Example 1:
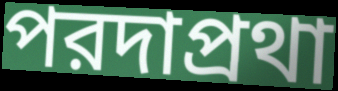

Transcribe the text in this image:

পরদাপ্রথা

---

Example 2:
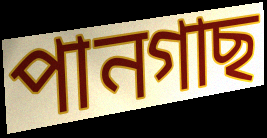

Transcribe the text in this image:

পানগাছ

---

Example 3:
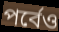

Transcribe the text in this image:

পর্বেও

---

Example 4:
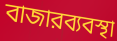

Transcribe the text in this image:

বাজারব্যবস্থা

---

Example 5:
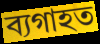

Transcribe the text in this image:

ব্যগাহত